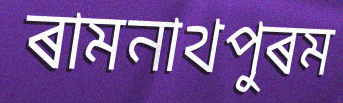
ৰামনাথপুৰম